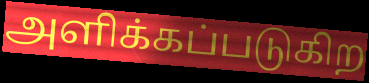
அளிக்கப்படுகிற